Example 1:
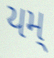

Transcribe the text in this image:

યમ્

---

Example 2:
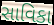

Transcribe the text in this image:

સાવિકા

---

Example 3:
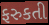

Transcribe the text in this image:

ફરુકતી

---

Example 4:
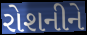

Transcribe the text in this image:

રોશનીને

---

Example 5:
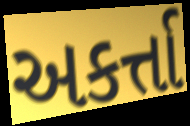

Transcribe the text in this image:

અકર્ત્તા